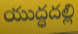
యుద్ధదల్లి